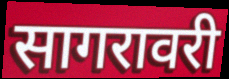
सागरावरी